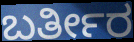
ಬರ್ತೀರ